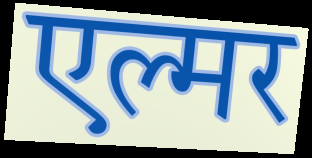
एल्मर